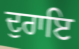
ਦੁਰਾਇ